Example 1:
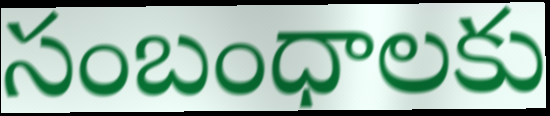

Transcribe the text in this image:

సంబంధాలకు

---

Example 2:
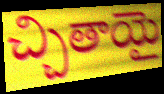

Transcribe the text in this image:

చ్చితాయై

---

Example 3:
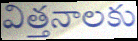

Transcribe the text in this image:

విత్తనాలకు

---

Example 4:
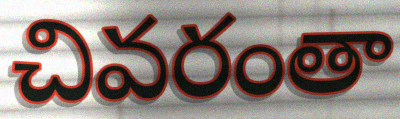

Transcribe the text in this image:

చివరంతా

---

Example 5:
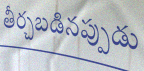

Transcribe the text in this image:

తీర్చబడినప్పుడు